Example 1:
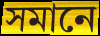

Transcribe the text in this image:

সমানে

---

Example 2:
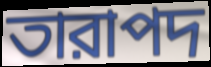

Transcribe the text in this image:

তারাপদ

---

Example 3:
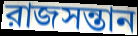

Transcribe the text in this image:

রাজসন্তান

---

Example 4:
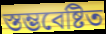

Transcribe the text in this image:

স্তম্ভবেষ্টিত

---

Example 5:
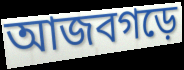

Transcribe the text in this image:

আজবগড়ে